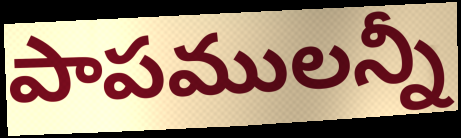
పాపములన్నీ